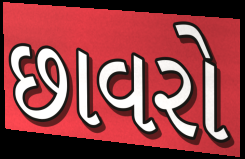
છાવરો